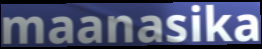
maanasika